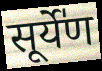
सूर्ये॑ण